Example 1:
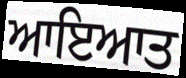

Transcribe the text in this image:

ਆਇਆਤ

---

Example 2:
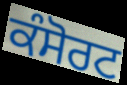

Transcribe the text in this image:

ਕੰਸੋਰਟ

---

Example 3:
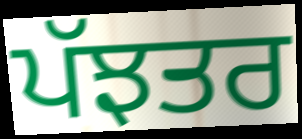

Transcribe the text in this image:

ਪੱਝਤਰ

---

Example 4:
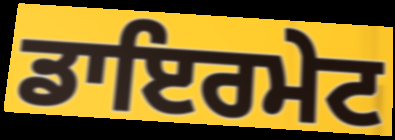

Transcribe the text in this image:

ਡਾਇਰਮੇਟ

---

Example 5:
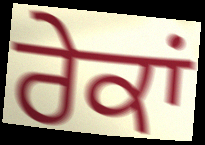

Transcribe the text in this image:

ਰੇਕਾਂ